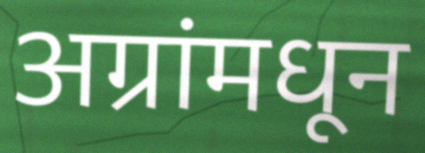
अग्रांमधून